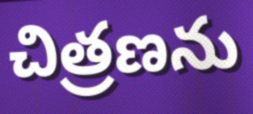
చిత్రణను